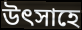
উৎসাহে